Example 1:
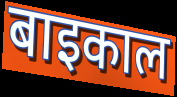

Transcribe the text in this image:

बाइकाल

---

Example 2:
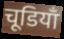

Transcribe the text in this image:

चूडियाँ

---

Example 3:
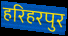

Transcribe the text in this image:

हरिहरपुर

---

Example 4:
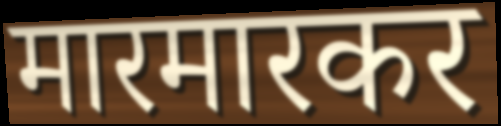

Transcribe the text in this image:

मारमारकर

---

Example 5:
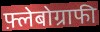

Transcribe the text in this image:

फ़्लेबोग्राफी